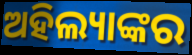
ଅହିଲ୍ୟାଙ୍କର